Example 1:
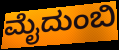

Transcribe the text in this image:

ಮೈದುಂಬಿ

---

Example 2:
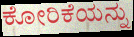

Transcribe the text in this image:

ಕೋರಿಕೆಯನ್ನು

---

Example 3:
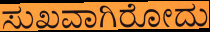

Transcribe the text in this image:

ಸುಖವಾಗಿರೋದು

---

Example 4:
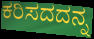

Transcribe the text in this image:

ಕರಿಸದದನ್ನ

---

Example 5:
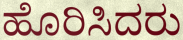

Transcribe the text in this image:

ಹೊರಿಸಿದರು